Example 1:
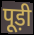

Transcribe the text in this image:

पूड़ी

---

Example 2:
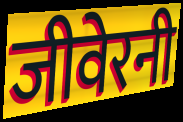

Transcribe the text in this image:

जीवेरनी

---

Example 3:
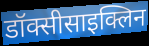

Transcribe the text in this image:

डॉक्सीसाइक्लिन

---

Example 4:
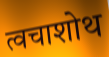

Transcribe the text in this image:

त्वचाशोथ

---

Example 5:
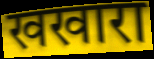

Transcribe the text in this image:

खखारा